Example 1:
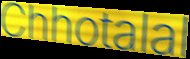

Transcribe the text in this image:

Chhotalal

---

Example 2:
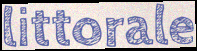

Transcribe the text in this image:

littorale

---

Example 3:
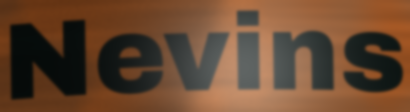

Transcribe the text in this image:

Nevins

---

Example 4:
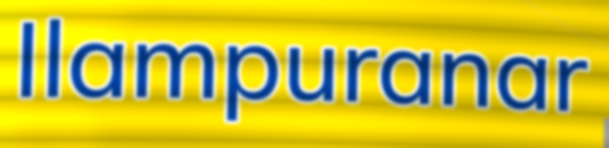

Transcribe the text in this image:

Ilampuranar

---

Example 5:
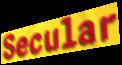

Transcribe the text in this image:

Secular